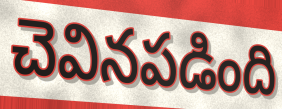
చెవినపడింది